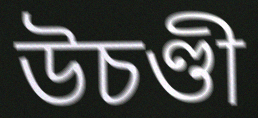
উচণ্ডী